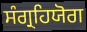
ਸੰਗ੍ਰਹਿਯੋਗ